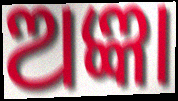
ଅଜ୍ଞା